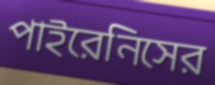
পাইরেনিসের